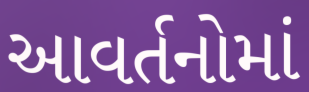
આવર્તનોમાં